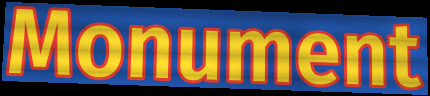
Monument